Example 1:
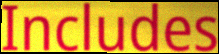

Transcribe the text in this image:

Includes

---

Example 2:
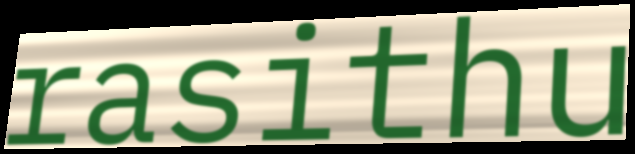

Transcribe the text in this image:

rasithu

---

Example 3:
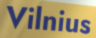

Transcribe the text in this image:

Vilnius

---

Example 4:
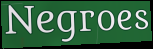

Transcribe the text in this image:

Negroes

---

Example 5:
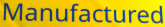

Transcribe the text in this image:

Manufactured